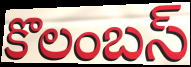
కొలంబస్